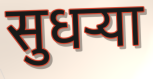
सुधर्‍या